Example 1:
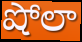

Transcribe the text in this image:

షోలా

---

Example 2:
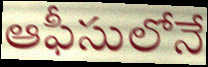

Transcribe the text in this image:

ఆఫీసులోనే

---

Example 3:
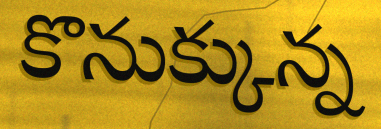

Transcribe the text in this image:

కొనుక్కున్న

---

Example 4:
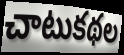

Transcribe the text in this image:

చాటుకథల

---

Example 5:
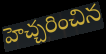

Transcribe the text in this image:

హెచ్చరించిన